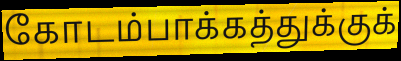
கோடம்பாக்கத்துக்குக்